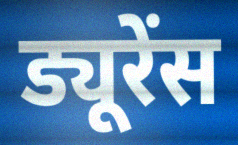
ड्यूरेंस